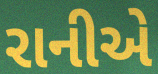
રાનીએ